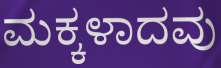
ಮಕ್ಕಳಾದವು